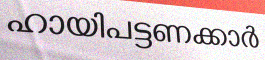
ഹായിപട്ടണക്കാർ